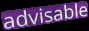
advisable